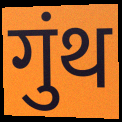
गुंथ